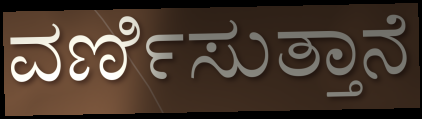
ವರ್ಣಿಸುತ್ತಾನೆ